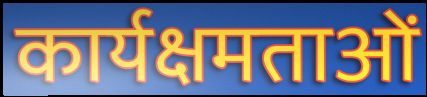
कार्यक्षमताओं